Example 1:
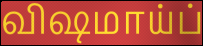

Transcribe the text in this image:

விஷமாய்ப்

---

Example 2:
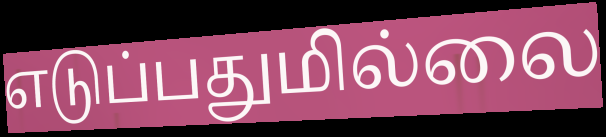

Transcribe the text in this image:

எடுப்பதுமில்லை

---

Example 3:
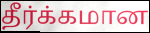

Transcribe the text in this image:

தீர்க்கமான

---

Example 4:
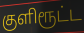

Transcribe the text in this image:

குளிரூட்ட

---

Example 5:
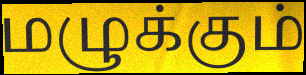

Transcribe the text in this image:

மழுக்கும்